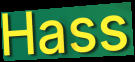
Hass